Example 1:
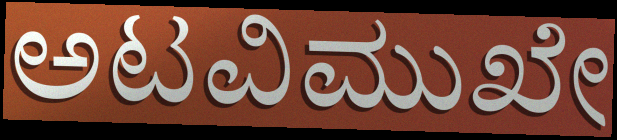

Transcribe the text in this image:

ಅಟವಿಮುಖೇ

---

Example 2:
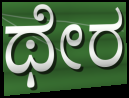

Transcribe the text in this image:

ಥೇರ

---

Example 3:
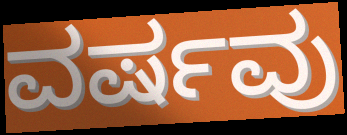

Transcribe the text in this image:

ವರ್ಷವು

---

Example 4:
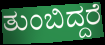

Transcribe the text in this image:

ತುಂಬಿದ್ದರೆ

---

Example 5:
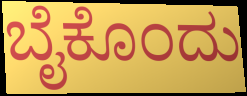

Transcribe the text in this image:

ಬೈಕೊಂದು